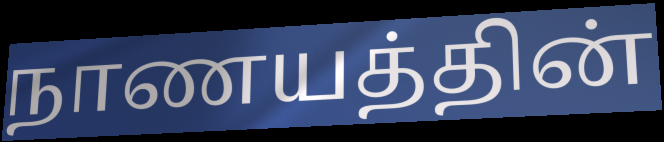
நாணயத்தின்